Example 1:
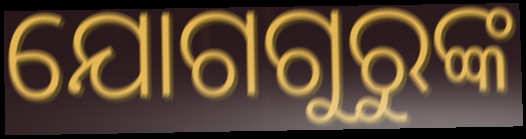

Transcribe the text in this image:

ଯୋଗଗୁରୁଙ୍କ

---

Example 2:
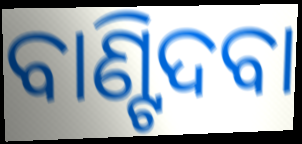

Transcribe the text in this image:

ବାଣ୍ଟିଦବା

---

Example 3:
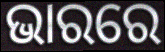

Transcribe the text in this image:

ଭାରରେ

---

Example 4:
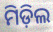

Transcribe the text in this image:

ମିଡ଼ିଲ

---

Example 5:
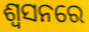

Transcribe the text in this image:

ଶ୍ଵସନରେ